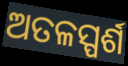
ଅତଳସ୍ପର୍ଶ